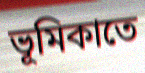
ভূমিকাতে